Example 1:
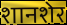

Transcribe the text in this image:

शानशेर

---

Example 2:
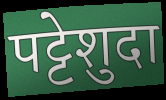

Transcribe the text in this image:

पट्टेशुदा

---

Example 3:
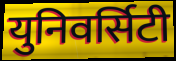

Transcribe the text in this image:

युनिवर्सिटी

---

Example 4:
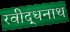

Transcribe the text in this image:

रवीद्धनाथ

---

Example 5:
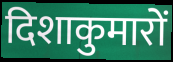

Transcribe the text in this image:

दिशाकुमारों